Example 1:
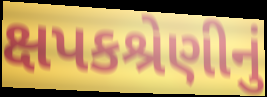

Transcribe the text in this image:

ક્ષપકશ્રેણીનું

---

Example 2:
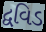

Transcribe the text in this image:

દ્વવિડ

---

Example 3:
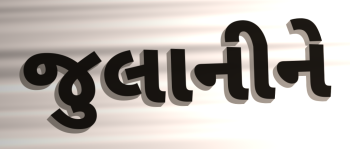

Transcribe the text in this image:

જુલાનીને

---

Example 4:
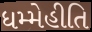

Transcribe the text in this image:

ધમ્મેહીતિ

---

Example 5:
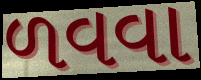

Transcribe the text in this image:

ળવવા